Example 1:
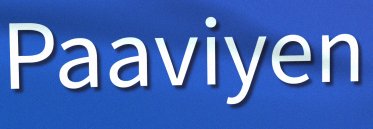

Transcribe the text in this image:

Paaviyen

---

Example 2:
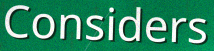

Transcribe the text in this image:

Considers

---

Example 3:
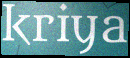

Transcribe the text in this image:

kriya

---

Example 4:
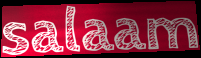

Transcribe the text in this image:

salaam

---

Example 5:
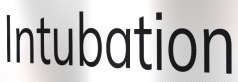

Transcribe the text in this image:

Intubation